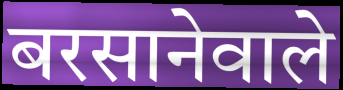
बरसानेवाले